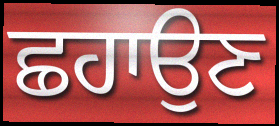
ਛਹਾਉਣ